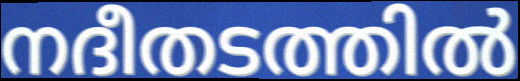
നദീതടത്തിൽ